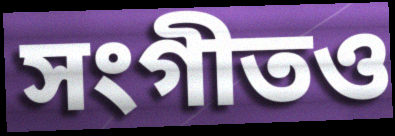
সংগীতও